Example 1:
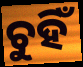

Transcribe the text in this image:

ଚୁହିଁ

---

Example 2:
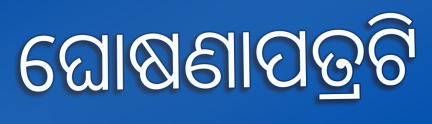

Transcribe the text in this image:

ଘୋଷଣାପତ୍ରଟି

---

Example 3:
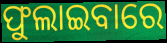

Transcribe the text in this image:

ଫୁଲାଇବାରେ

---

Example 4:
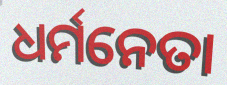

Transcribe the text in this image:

ଧର୍ମନେତା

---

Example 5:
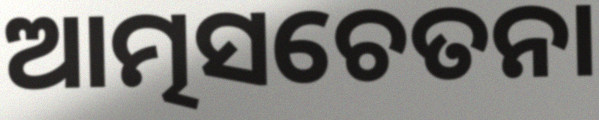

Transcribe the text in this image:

ଆତ୍ମସଚେତନା